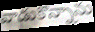
వాడుకొన్నాను